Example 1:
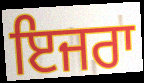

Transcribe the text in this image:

ਇਜਰਾ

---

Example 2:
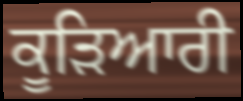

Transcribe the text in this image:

ਕੂੜਿਆਰੀ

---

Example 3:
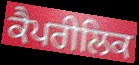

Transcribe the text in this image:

ਕੈਪਰੀਲਿਕ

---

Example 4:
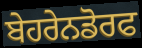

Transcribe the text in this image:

ਬੇਹਰੇਨਡੋਰਫ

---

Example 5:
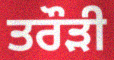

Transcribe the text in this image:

ਤਰੌੜੀ